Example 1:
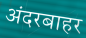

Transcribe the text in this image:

अंदरबाहर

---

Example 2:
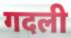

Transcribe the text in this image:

गदली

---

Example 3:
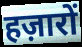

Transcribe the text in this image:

हज़ारों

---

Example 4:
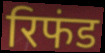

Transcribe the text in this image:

रिफंड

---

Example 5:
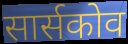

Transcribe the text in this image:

सार्सकोव